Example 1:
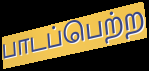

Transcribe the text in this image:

பாடப்பெற்ற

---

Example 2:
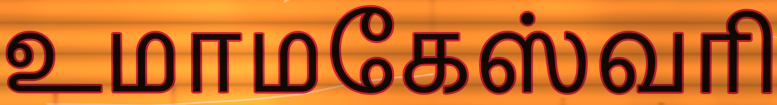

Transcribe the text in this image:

உமாமகேஸ்வரி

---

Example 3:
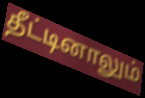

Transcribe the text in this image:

தீட்டினாலும்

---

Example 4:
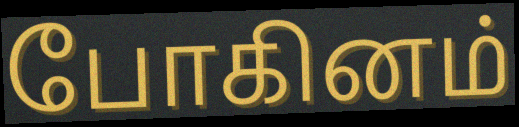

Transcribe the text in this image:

போகினம்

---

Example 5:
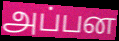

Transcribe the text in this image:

அப்பன